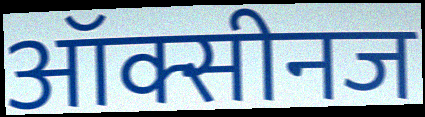
ऑक्सीनज